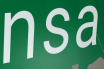
nsa